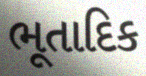
ભૂતાદિક